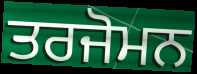
ਤਰਜੋਮਨ